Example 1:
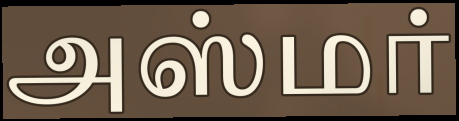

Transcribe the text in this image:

அஸ்மர்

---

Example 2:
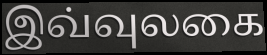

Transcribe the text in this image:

இவ்வுலகை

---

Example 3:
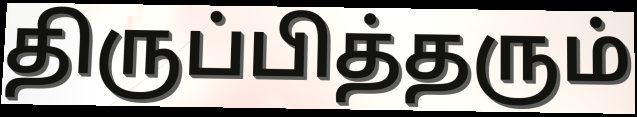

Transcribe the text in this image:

திருப்பித்தரும்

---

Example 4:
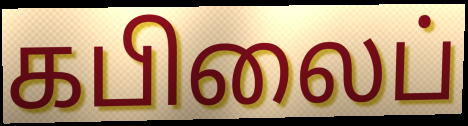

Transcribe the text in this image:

கபிலைப்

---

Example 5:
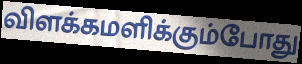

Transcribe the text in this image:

விளக்கமளிக்கும்போது